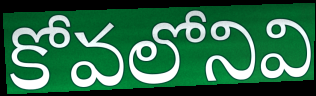
కోవలోనివి